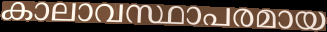
കാലാവസ്ഥാപരമായ